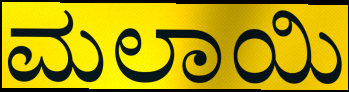
ಮಲಾಯಿ